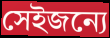
সেইজন্যে